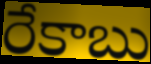
రేకాబు